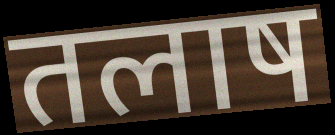
तलाष